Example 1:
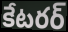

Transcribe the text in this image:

కేటరర్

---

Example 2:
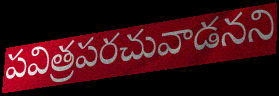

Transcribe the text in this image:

పవిత్రపరచువాడనని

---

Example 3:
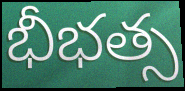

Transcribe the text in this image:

భీభత్స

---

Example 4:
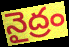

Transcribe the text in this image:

నైద్రం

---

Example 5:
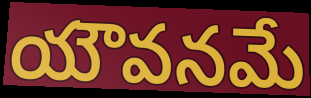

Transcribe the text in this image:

యౌవనమే